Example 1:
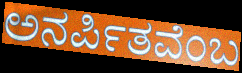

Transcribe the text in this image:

ಅನರ್ಪಿತವೆಂಬ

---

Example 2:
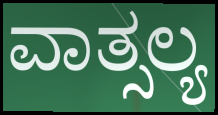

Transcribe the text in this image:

ವಾತ್ಸಲ್ಯ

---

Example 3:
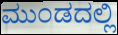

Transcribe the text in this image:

ಮುಂಡದಲ್ಲಿ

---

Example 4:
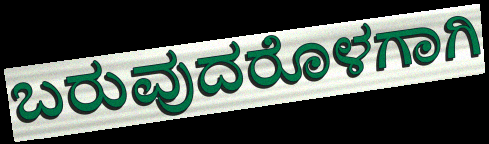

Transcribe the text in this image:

ಬರುವುದರೊಳಗಾಗಿ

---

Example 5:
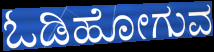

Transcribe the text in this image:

ಓಡಿಹೋಗುವ